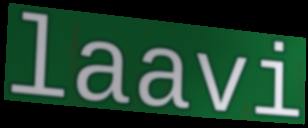
laavi